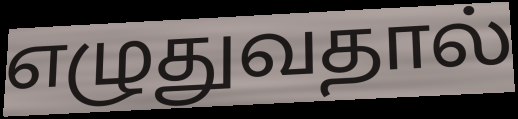
எழுதுவதால்